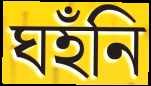
ঘহঁনি